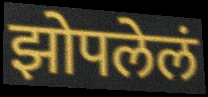
झोपलेलं